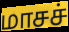
மாசச்